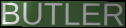
BUTLER